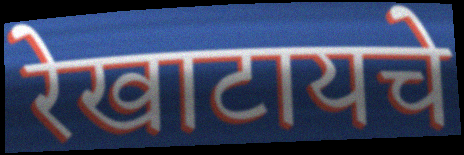
रेखाटायचे